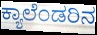
ಕ್ಯಾಲೆಂಡರಿನ